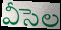
వీసెల